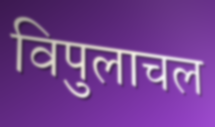
विपुलाचल